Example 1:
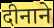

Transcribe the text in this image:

दीनाने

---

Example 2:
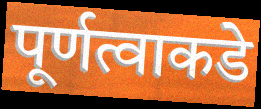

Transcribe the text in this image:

पूर्णत्वाकडे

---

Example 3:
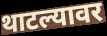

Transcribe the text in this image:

थाटल्यावर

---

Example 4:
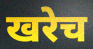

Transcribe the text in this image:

खरेच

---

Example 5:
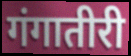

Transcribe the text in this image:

गंगातीरी